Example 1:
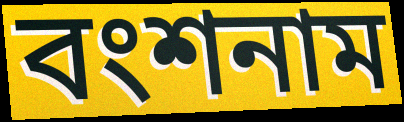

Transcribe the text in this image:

বংশনাম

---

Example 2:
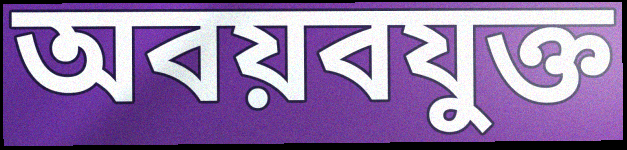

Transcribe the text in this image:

অবয়বযুক্ত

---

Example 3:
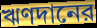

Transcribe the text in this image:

ঋণদানের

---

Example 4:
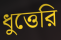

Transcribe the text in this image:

ধুত্তেরি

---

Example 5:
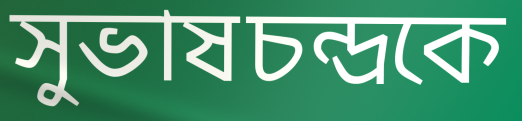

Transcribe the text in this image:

সুভাষচন্দ্রকে